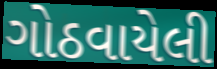
ગોઠવાયેલી